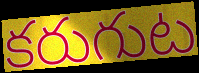
కరుగుట